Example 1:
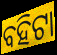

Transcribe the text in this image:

ବହିଟା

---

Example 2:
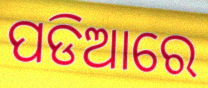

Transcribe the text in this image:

ପଡିଆରେ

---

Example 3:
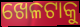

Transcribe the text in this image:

ଖେଳଟାକୁ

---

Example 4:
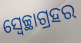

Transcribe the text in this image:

ସ୍ବେଚ୍ଛାଗ୍ରହର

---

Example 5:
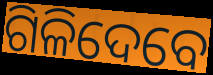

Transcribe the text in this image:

ଗିଳିଦେବେ